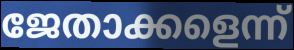
ജേതാക്കളെന്ന്